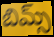
బిమ్స్